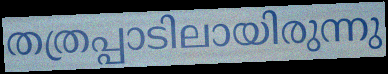
തത്രപ്പാടിലായിരുന്നു